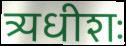
त्र्यधीशः